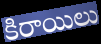
కిరాయిలు